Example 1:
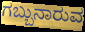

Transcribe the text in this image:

ಗಬ್ಬುನಾರುವ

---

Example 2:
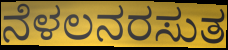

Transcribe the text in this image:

ನೆಳಲನರಸುತ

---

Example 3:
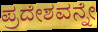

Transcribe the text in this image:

ಪ್ರದೇಶವನ್ನೇ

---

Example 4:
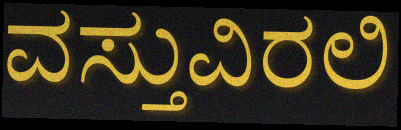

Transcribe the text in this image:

ವಸ್ತುವಿರಲಿ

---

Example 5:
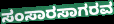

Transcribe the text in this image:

ಸಂಸಾರಸಾಗರವ